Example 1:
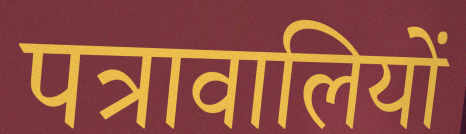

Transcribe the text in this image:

पत्रावालियों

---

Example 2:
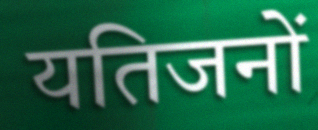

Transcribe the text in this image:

यतिजनों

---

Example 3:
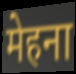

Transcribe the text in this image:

मेहना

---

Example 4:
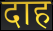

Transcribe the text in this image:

दाह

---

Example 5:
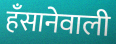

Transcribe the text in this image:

हँसानेवाली